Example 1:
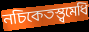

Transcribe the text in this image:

নচিকেতস্ত্বমেধি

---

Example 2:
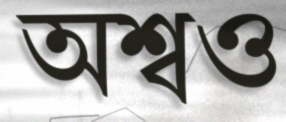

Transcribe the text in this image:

অশ্বও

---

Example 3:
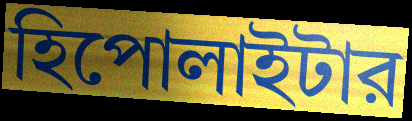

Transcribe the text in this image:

হিপোলাইটার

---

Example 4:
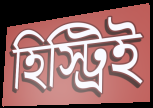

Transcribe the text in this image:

হিস্ট্রিই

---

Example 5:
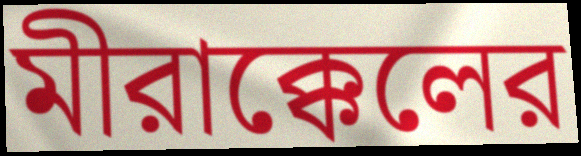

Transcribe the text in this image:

মীরাক্কেলের